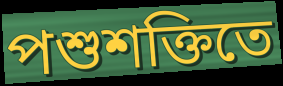
পশুশক্তিতে